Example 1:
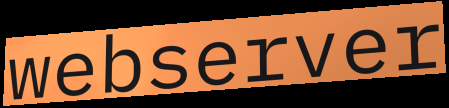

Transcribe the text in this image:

webserver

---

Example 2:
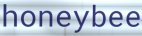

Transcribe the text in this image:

honeybee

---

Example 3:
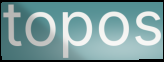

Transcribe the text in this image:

topos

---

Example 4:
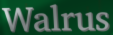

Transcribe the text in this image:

Walrus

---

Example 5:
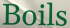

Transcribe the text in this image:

Boils